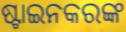
ଷ୍ଟାଇନକରଙ୍କ